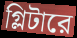
গ্লিটারে